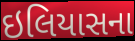
ઇલિયાસના